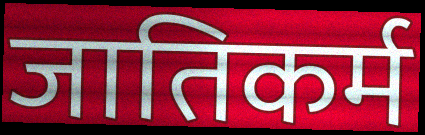
जातिकर्म